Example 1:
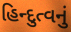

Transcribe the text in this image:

હિન્દુત્વનું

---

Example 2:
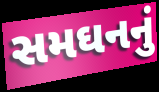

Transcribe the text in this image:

સમઘનનું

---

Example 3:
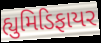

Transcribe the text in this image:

હ્યુમિડિફાયર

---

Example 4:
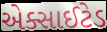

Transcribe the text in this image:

એક્સાઈટેડ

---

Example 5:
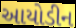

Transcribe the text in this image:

આયોડીન